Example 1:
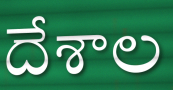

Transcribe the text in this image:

దేశాల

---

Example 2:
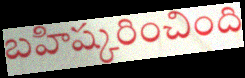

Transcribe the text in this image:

బహిష్కరించింది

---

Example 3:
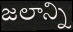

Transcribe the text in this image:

జలాన్ని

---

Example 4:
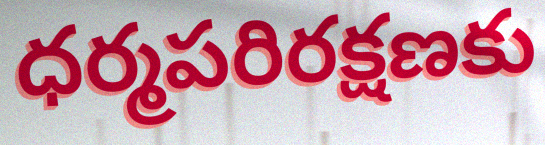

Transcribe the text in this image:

ధర్మపరిరక్షణకు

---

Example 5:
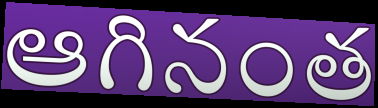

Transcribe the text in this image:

ఆగినంత